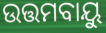
ଉତ୍ତମବାୟୁ